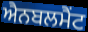
ਐਨਬਲਮੈਂਟ